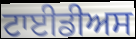
ਟਾਈਡੀਅਸ